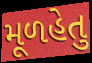
મૂળહેતુ